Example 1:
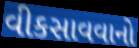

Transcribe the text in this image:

વીકસાવવાનો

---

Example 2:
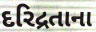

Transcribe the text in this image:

દરિદ્રતાના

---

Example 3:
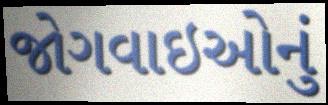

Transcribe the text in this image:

જોગવાઇઓનું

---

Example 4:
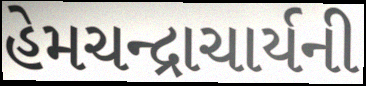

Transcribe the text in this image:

હેમચન્દ્રાચાર્યની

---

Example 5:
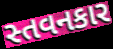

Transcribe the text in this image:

સ્તવનકાર